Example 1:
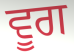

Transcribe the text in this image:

ਵੂਗ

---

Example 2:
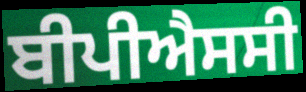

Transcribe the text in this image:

ਬੀਪੀਐਸਸੀ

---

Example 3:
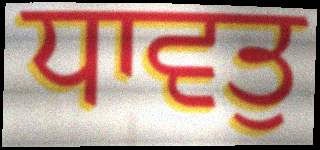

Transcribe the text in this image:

ਧਾਵਤੁ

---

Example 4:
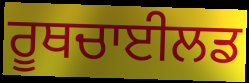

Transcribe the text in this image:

ਰੂਥਚਾਈਲਡ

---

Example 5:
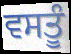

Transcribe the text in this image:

ਵਸਤੂੰ